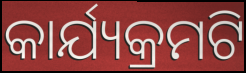
କାର୍ଯ୍ୟକ୍ରମଟି